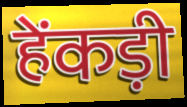
हेंकड़ी